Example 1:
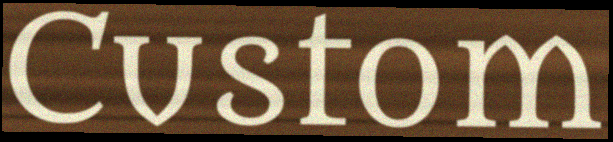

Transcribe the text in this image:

Custom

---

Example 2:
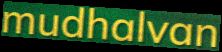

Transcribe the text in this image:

mudhalvan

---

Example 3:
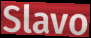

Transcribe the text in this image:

Slavo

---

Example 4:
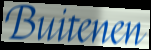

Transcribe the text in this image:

Buitenen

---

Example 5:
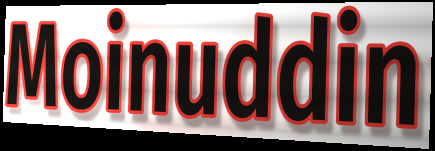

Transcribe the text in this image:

Moinuddin